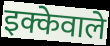
इक्केवाले